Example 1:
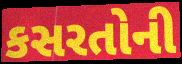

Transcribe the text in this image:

કસરતોની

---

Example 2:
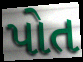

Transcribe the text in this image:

પોત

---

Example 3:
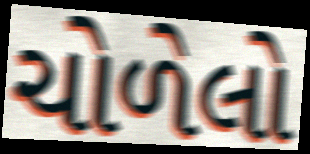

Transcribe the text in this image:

ચોળેલો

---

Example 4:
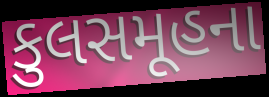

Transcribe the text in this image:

કુલસમૂહના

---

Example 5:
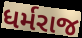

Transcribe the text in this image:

ધર્મરાજ